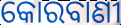
କୋରବାଣୀ